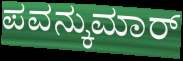
ಪವನ್ಕುಮಾರ್